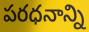
పరధనాన్ని